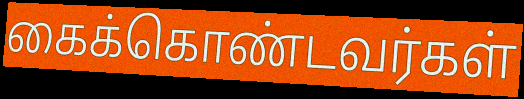
கைக்கொண்டவர்கள்